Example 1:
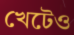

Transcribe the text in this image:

খেটেও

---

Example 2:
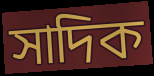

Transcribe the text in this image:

সাদিক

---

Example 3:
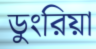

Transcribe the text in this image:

ডুংরিয়া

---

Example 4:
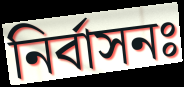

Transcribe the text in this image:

নির্বাসনঃ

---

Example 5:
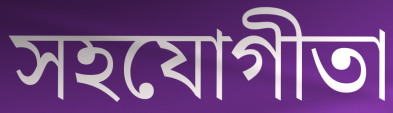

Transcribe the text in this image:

সহযোগীতা